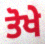
ਤੋਖੇ